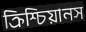
ক্রিশ্চিয়ানস